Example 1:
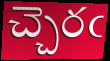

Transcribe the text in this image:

చ్చెరఁ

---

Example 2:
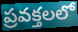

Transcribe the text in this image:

ప్రవక్తలలో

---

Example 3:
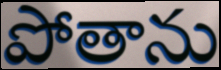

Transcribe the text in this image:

పోతాను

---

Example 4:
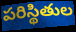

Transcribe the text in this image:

పరిస్థితుల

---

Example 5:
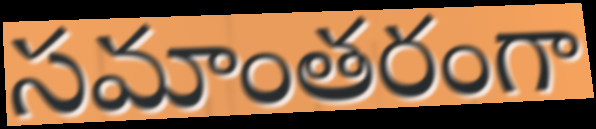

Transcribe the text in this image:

సమాంతరంగా